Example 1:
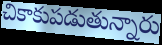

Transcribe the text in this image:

చికాకుపడుతున్నారు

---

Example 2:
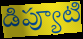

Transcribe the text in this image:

డిప్యూటి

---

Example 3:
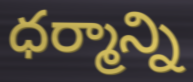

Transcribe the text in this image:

ధర్మాన్ని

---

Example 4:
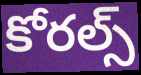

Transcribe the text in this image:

కోరల్స్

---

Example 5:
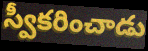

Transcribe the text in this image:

స్వీకరించాడు